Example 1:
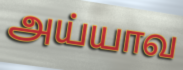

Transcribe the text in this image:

அய்யாவ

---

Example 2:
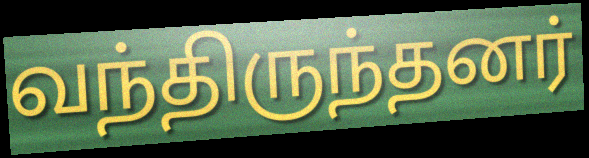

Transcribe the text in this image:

வந்திருந்தனர்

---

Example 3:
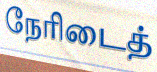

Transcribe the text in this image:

நேரிடைத்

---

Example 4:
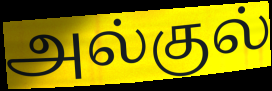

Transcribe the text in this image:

அல்குல்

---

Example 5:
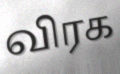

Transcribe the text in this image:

விரக